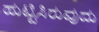
ಹುಟ್ಟಿಸಿರುವುದು